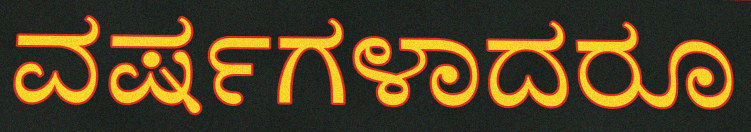
ವರ್ಷಗಳಾದರೂ